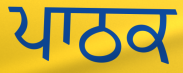
ਪਾਠਕ